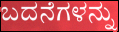
ಬದನೆಗಳನ್ನು